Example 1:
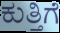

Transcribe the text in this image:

ಕುತ್ತಿಗೆ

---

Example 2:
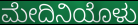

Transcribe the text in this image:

ಮೇದಿನಿಯೊಳು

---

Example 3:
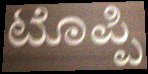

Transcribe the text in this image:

ಟೊಪ್ಪಿ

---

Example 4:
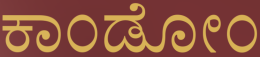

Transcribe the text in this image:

ಕಾಂಡೋಂ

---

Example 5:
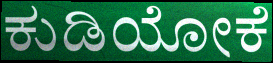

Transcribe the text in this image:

ಕುಡಿಯೋಕೆ